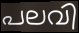
പലവി